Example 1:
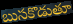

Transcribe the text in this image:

బుసకొడుతూ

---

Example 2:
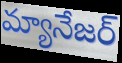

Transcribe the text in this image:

మ్యానేజర్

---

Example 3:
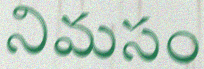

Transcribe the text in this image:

నిమసం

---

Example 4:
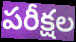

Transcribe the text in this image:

పరీక్షల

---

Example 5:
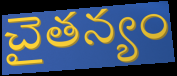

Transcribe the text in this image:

చైతన్యం